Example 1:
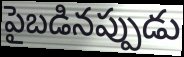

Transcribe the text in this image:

పైబడినప్పుడు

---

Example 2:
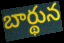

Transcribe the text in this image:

బార్థున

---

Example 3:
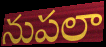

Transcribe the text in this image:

నుపలా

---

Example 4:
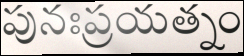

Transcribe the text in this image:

పునఃప్రయత్నం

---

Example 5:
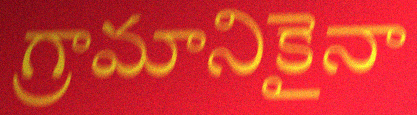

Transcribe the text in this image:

గ్రామానికైనా